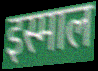
इस्माल